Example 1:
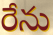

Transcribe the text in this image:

రేను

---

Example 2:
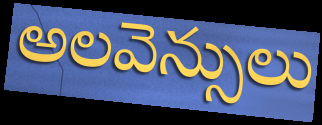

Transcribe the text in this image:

అలవెన్సులు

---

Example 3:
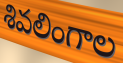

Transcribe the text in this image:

శివలింగాల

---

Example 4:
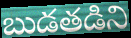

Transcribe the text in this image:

బుడతడిని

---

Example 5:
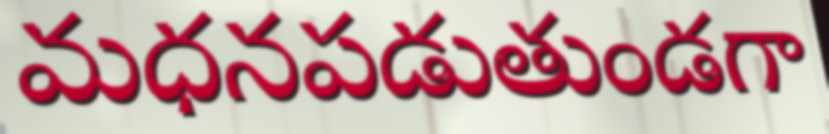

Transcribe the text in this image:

మధనపడుతుండగా